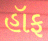
હૉફ